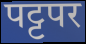
पट्टपर